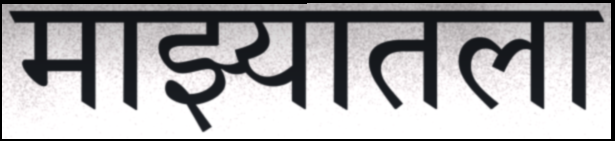
माझ्यातला